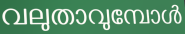
വലുതാവുമ്പോൾ